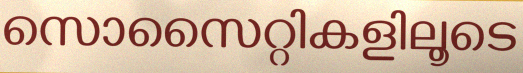
സൊസൈറ്റികളിലൂടെ